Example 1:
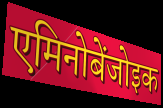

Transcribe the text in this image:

एमिनोबेंजोइक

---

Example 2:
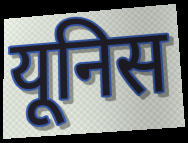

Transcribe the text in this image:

यूनिस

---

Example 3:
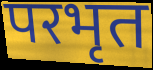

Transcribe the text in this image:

परभृत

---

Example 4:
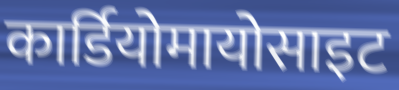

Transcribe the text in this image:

कार्डियोमायोसाइट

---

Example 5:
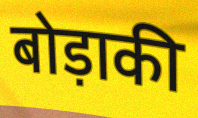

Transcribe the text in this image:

बोड़ाकी